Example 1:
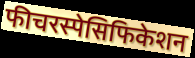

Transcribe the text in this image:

फीचरस्पेसिफिकेशन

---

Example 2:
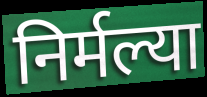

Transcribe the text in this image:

निर्मल्या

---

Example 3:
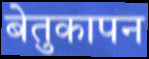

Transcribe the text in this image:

बेतुकापन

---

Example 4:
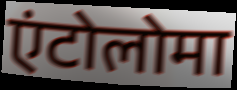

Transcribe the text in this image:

एंटोलोमा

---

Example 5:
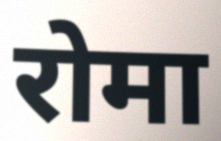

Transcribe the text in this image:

रोमा